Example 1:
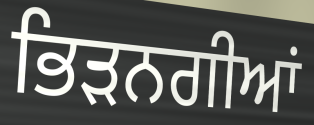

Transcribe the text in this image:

ਭਿੜਨਗੀਆਂ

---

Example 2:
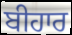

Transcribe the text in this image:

ਬੀਹਾਰ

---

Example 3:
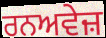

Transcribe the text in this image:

ਰਨਅਵੇਜ਼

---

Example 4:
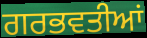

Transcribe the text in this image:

ਗਰਭਵਤੀਆਂ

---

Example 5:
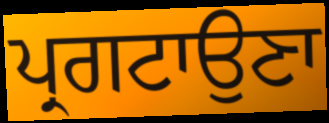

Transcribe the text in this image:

ਪ੍ਰਗਟਾਉਣਾ